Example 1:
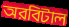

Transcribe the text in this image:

অরবিটাল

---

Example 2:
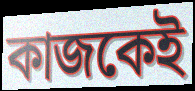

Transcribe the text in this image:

কাজকেই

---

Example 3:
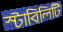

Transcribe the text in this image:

স্টাবিলিটি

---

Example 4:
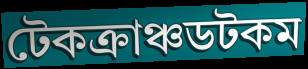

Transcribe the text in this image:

টেকক্রাঞ্চডটকম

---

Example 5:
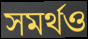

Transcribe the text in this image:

সমর্থও